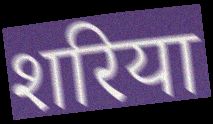
शरिया